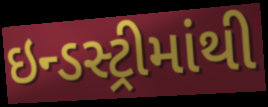
ઇન્ડસ્ટ્રીમાંથી